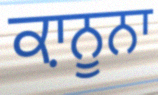
ਕ਼ਾਨੂਨਾ